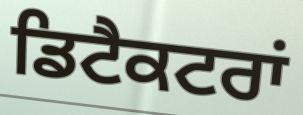
ਡਿਟੈਕਟਰਾਂ